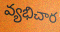
వ్యభిచార